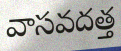
వాసవదత్త